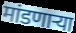
मांडणाऱ्या